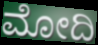
ಮೋದಿ